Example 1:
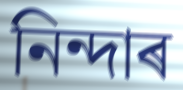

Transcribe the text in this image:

নিন্দাৰ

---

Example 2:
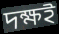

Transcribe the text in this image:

দক্ষই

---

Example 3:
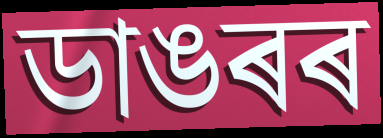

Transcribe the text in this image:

ডাঙৰৰ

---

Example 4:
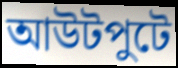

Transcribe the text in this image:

আউটপুটে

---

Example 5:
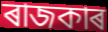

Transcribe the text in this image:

ৰাজকাৰ